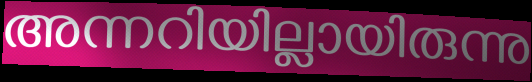
അന്നറിയില്ലായിരുന്നു